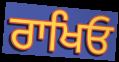
ਰਾਖਿਓ